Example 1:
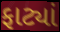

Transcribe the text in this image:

ફાટ્યાં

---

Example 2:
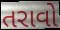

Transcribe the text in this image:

તરાવો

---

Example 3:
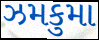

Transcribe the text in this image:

ઝમકુમા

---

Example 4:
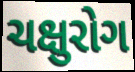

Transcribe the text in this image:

ચક્ષુરોગ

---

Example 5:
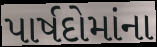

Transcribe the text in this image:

પાર્ષદોમાંના